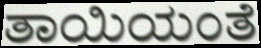
ತಾಯಿಯಂತೆ